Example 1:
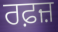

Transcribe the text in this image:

ਰਫ਼ਜ਼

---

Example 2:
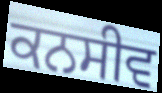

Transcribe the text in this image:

ਕਨਸੀਵ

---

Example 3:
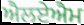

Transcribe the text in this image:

ਐਲਏਐਮ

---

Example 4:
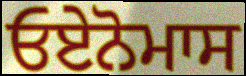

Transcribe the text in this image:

ਓਏਨੋਮਾਸ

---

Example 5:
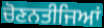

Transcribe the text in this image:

ਚੋਣਨਤੀਜਿਆਂ